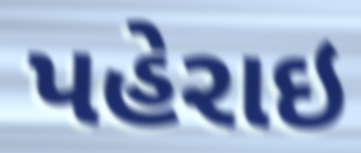
પહેરાઇ